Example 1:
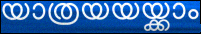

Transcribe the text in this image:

യാത്രയയയ്ക്കാം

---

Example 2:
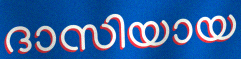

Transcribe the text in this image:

ദാസിയായ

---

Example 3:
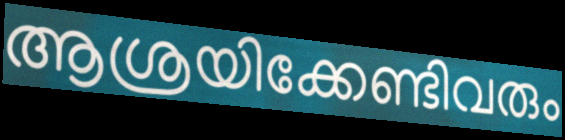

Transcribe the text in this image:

ആശ്രയിക്കേണ്ടിവരും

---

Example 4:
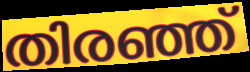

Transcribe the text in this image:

തിരഞ്ഞ്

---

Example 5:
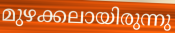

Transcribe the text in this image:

മുഴക്കലായിരുന്നു